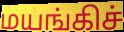
மயங்கிச்